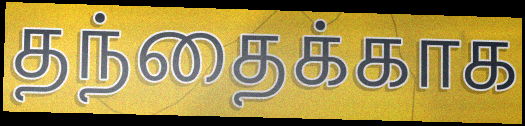
தந்தைக்காக